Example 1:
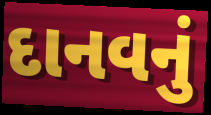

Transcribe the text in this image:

દાનવનું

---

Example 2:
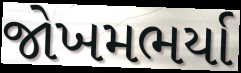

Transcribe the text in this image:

જોખમભર્યા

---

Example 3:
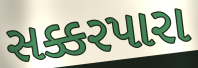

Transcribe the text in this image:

સક્કરપારા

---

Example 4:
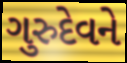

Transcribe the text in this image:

ગુરુદેવને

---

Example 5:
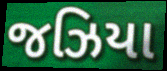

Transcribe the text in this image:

જઝિયા